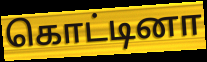
கொட்டினா